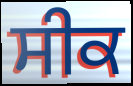
ਸੀਕ